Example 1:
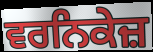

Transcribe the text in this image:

ਵਰਨਿਕੇਜ਼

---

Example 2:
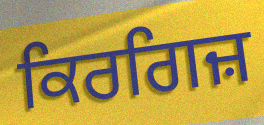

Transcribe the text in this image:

ਕਿਰਗਿਜ਼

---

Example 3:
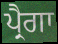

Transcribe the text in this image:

ਪ੍ਰੈਗਾ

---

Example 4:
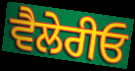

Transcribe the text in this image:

ਵੈਲੇਰੀਓ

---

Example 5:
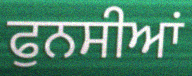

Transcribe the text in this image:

ਫੁਨਸੀਆਂ